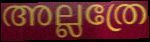
അല്ലത്രേ